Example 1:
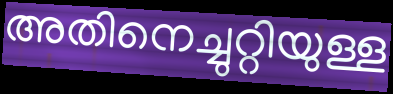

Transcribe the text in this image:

അതിനെച്ചുറ്റിയുള്ള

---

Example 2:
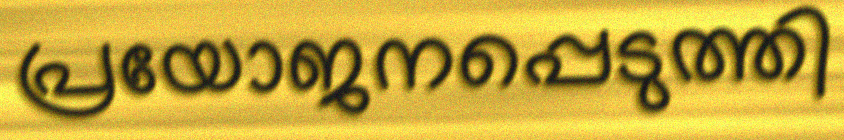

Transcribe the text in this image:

പ്രയോജനപ്പെടുത്തി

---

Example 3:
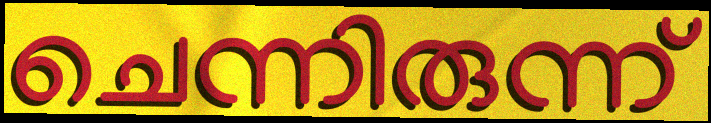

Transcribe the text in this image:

ചെന്നിരുന്ന്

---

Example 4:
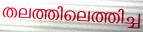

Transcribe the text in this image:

തലത്തിലെത്തിച്ച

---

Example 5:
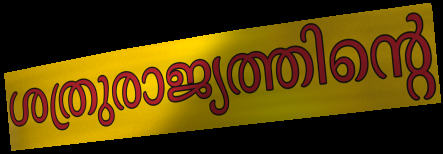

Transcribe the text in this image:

ശത്രുരാജ്യത്തിന്റെ